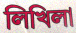
লিখিলা